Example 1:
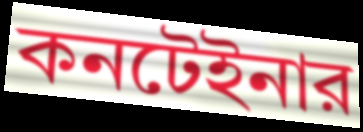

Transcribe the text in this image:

কনটেইনার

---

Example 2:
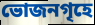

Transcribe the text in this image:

ভোজনগৃহে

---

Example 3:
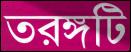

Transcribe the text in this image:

তরঙ্গটি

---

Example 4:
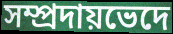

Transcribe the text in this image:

সম্প্রদায়ভেদে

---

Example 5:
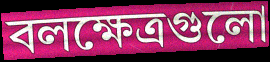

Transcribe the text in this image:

বলক্ষেত্রগুলো